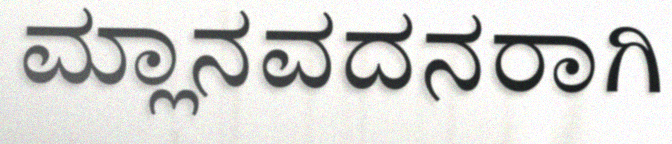
ಮ್ಲಾನವದನರಾಗಿ